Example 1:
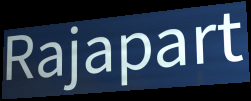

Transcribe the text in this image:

Rajapart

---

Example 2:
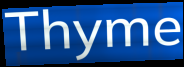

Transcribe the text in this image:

Thyme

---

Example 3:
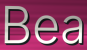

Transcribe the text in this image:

Bea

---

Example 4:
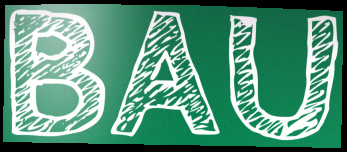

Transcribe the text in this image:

BAU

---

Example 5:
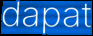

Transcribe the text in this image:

dapat